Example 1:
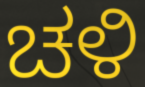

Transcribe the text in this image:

ಚಳಿ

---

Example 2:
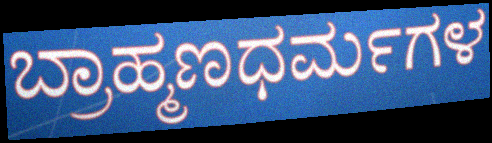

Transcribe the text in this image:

ಬ್ರಾಹ್ಮಣಧರ್ಮಗಳ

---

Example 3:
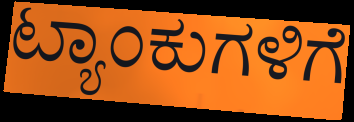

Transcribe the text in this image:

ಟ್ಯಾಂಕುಗಳಿಗೆ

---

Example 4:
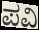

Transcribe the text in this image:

ಪವಿ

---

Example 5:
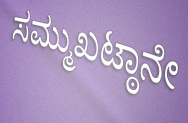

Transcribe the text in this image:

ಸಮ್ಮುಖಟ್ಠಾನೇ